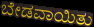
ಬೇಡವಾಯಿತು